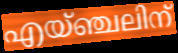
എയ്ഞ്ചലിന്